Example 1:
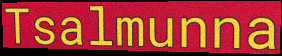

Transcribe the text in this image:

Tsalmunna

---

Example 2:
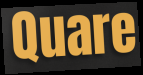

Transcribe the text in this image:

Quare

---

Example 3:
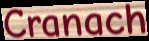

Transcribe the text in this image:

Cranach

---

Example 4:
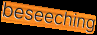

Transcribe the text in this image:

beseeching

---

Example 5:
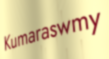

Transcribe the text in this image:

Kumaraswmy